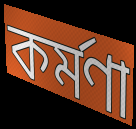
কর্মণা